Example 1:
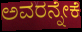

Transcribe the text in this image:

ಅವರನ್ನೇಕೆ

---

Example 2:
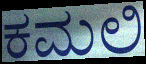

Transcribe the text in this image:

ಕಮಲಿ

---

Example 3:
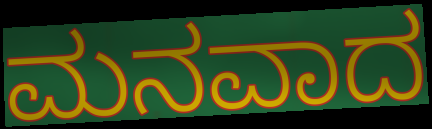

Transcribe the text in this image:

ಮನವಾದ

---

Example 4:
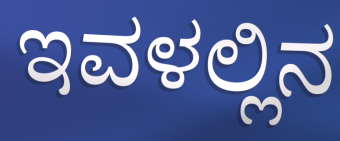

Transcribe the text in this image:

ಇವಳಲ್ಲಿನ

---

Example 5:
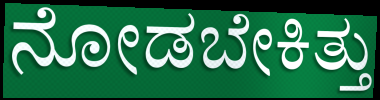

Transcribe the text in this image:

ನೋಡಬೇಕಿತ್ತು